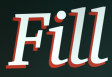
Fill